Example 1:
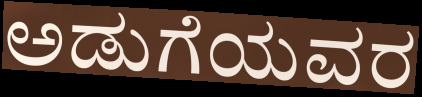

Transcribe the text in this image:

ಅಡುಗೆಯವರ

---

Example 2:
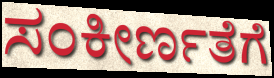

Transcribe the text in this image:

ಸಂಕೀರ್ಣತೆಗೆ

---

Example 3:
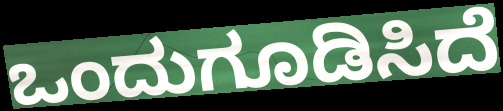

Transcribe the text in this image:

ಒಂದುಗೂಡಿಸಿದೆ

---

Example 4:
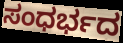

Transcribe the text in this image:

ಸಂಧರ್ಭದ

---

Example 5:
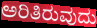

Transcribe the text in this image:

ಅರಿತಿರುವುದು